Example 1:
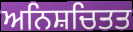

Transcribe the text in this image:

ਅਨਿਸ਼ਚਿਤਤ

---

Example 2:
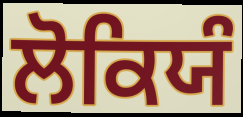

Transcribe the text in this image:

ਲੋਕਿਯੰ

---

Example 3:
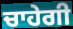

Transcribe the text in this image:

ਚਾਹੇਗੀ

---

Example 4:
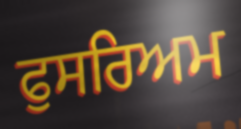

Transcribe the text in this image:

ਫੁਸਰਿਅਮ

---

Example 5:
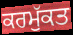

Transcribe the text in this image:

ਕਰਮੁੱਕਤ